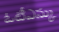
ఓటీఎస్కు